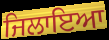
ਜਿਲਾਇਆ